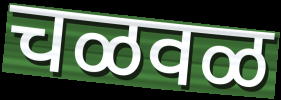
चळवळ